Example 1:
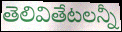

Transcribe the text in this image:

తెలివితేటలన్నీ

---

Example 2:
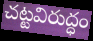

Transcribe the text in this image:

చట్టవిరుద్ధం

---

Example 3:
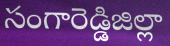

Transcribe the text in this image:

సంగారెడ్డిజిల్లా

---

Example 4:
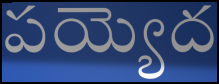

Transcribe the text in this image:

పయ్యెద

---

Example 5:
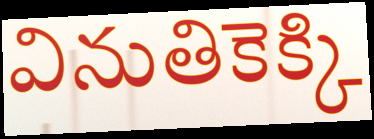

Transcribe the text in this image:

వినుతికెక్కి